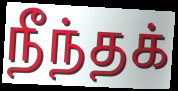
நீந்தக்